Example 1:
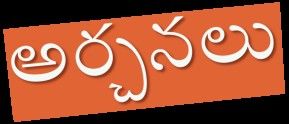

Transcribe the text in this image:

అర్చనలు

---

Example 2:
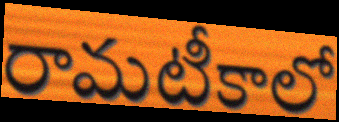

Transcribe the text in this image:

రామటీకాలో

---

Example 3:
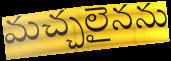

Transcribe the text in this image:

మచ్చలైనను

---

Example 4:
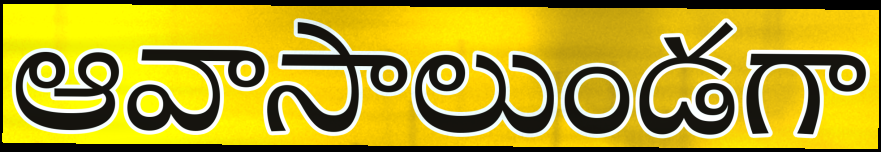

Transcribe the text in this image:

ఆవాసాలుండగా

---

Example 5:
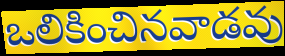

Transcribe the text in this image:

ఒలికించినవాడవు